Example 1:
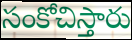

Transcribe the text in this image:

సంకోచిస్తారు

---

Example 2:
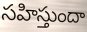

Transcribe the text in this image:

సహిస్తుందా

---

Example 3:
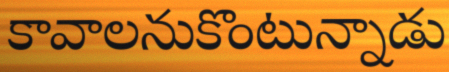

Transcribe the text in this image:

కావాలనుకొంటున్నాడు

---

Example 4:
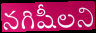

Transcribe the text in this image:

నగిషీలని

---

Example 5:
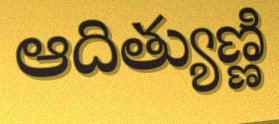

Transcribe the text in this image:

ఆదిత్యుణ్ణి